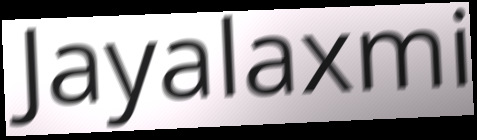
Jayalaxmi